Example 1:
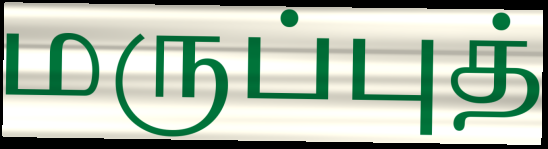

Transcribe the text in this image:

மருப்புத்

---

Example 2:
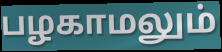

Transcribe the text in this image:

பழகாமலும்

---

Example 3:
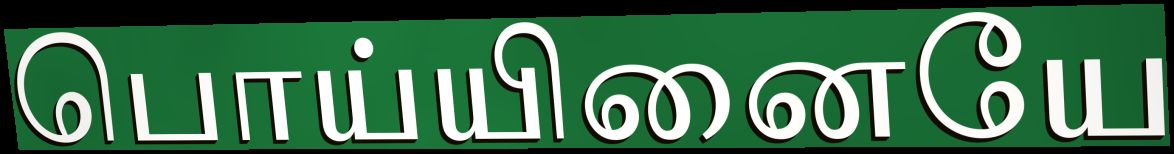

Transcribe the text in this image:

பொய்யினையே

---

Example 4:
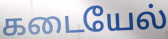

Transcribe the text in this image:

கடையேல்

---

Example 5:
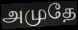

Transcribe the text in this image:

அமுதே